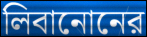
লিবানোনের